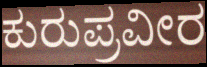
ಕುರುಪ್ರವೀರ